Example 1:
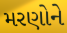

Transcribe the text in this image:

મરણોને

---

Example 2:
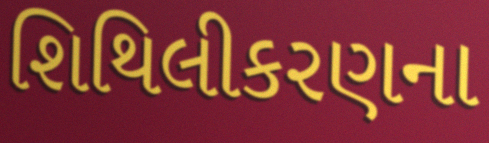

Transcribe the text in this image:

શિથિલીકરણના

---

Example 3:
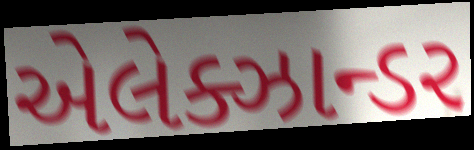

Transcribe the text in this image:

એલેક્ઝાન્ડર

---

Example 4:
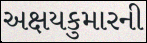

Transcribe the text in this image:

અક્ષયકુમારની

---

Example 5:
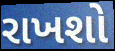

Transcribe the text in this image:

રાખશો